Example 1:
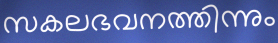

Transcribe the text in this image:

സകലഭവനത്തിന്നും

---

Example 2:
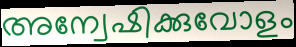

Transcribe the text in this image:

അന്വേഷിക്കുവോളം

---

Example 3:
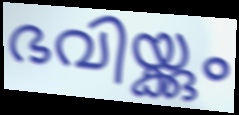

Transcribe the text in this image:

ഭവിയ്ക്കും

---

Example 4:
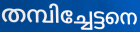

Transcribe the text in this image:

തമ്പിച്ചേട്ടനെ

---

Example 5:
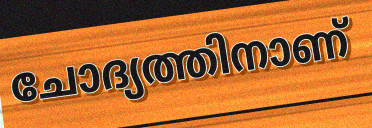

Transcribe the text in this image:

ചോദ്യത്തിനാണ്